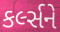
કર્લ્સને